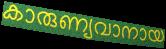
കാരുണ്യവാനായ